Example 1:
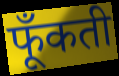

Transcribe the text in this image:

फूँकती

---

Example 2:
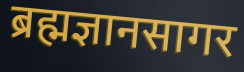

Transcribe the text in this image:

ब्रह्मज्ञानसागर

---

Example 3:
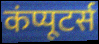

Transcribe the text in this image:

कंप्यूटर्स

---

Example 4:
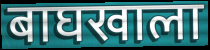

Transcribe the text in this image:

बाघखाला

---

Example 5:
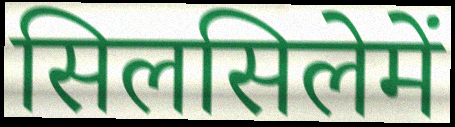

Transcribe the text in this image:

सिलसिलेमें